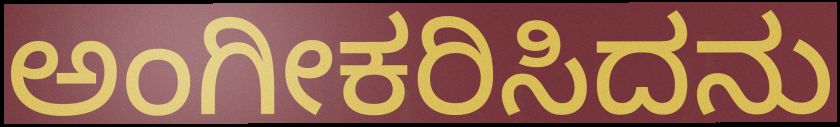
ಅಂಗೀಕರಿಸಿದನು